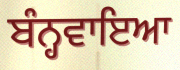
ਬੰਨ੍ਹਵਾਇਆ